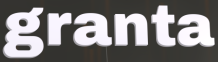
granta